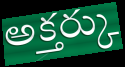
అక్తర్కు